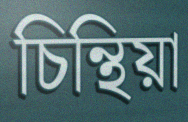
চিন্থিয়া